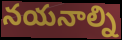
నయనాల్ని